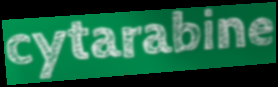
cytarabine